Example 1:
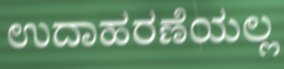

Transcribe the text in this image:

ಉದಾಹರಣೆಯಲ್ಲ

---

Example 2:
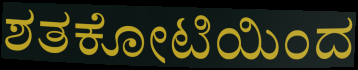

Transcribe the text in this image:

ಶತಕೋಟಿಯಿಂದ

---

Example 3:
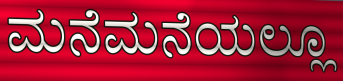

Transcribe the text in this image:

ಮನೆಮನೆಯಲ್ಲೂ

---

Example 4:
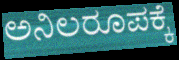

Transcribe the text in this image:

ಅನಿಲರೂಪಕ್ಕೆ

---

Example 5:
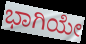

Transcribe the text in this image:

ಭಾಗಿಯೇ